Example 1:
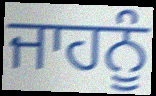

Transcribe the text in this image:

ਜਾਹਨੂੰ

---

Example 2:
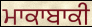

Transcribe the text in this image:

ਮਾਕਾਬਾਕੀ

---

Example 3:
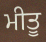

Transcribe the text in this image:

ਮੀਤੂ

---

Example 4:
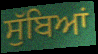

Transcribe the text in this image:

ਸੁੱਬਿਆਂ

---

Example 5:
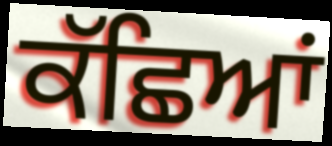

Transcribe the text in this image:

ਕੱਛਿਆਂ